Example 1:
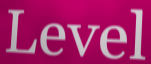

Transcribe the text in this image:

Level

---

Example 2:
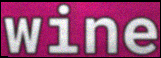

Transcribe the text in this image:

wine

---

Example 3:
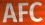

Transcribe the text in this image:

AFC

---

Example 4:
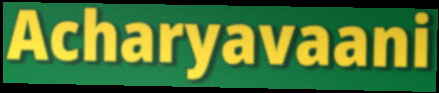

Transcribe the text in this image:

Acharyavaani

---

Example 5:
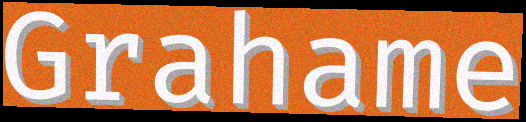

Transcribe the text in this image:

Grahame